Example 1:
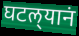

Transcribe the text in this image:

घटल्यानं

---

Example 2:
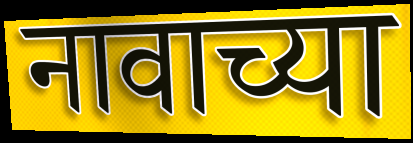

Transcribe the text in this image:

नावाच्या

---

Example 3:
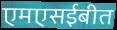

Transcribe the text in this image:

एमएसईबीत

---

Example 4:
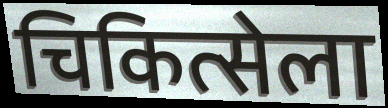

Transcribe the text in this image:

चिकित्सेला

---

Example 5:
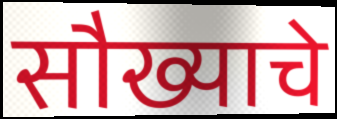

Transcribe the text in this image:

सौख्याचे